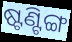
ଷ୍ଟଣ୍ଟିଙ୍ଗ